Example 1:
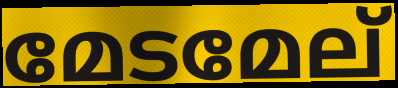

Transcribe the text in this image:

മേടമേല്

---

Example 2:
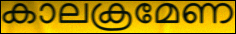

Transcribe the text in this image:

കാലക്രമേണ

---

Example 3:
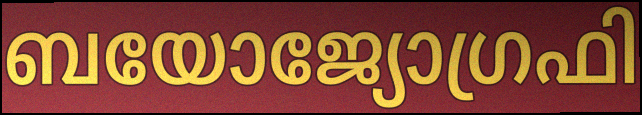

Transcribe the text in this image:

ബയോജ്യോഗ്രഫി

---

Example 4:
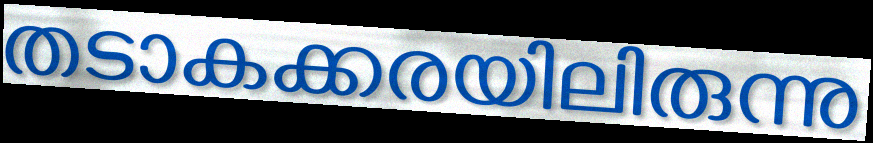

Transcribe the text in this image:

തടാകക്കരയിലിരുന്നു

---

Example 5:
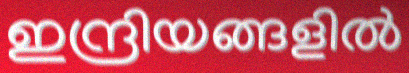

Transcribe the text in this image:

ഇന്ദ്രിയങ്ങളിൽ